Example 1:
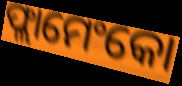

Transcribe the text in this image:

ଫ୍ଲାମେଂକୋ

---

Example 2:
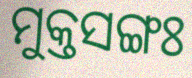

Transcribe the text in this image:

ମୁକ୍ତସଙ୍ଗଃ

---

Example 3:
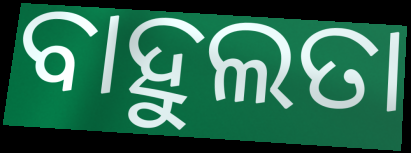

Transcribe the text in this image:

ବାହୁଲତା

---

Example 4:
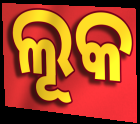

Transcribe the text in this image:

ଲୂକ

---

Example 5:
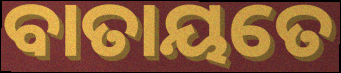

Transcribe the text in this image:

ବାତାୟତେ